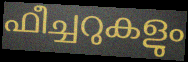
ഫീച്ചറുകളും